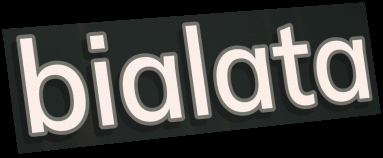
bialata